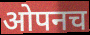
ओपनच